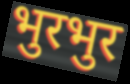
भुरभुर